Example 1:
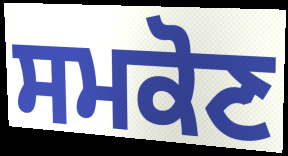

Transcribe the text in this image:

ਸਮਕੋਣ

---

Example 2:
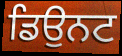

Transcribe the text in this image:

ਡਿਉਨਟ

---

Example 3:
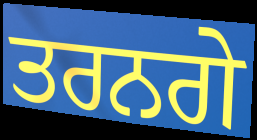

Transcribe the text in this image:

ਤਰਨਗੇ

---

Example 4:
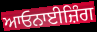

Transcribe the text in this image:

ਆਓਨਾਈਜ਼ਿੰਗ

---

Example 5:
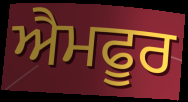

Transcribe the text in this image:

ਐਮਫੂਰ